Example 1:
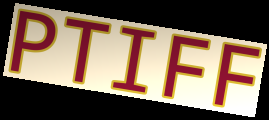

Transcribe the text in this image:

PTIFF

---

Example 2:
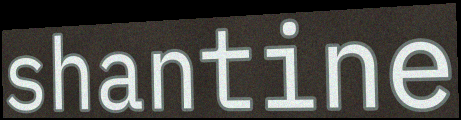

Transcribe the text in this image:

shantine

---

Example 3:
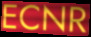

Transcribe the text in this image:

ECNR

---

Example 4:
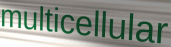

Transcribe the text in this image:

multicellular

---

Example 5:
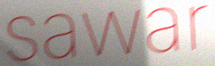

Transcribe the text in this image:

sawar